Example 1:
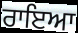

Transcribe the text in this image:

ਰਾਇਆ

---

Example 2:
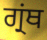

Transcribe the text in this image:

ਗ੍ਰਂਥ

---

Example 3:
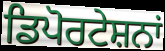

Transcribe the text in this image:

ਡਿਪੋਰਟੇਸ਼ਨਾਂ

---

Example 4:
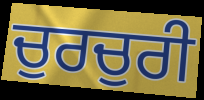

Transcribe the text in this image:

ਚੁਰਚੁਰੀ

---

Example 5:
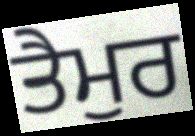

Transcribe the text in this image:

ਤੈਮੁਰ